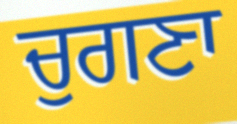
ਚੁਗਣਾ